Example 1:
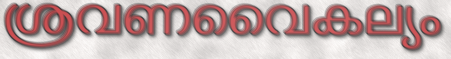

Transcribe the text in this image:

ശ്രവണവൈകല്യം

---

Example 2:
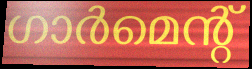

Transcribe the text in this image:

ഗാർമെന്റ്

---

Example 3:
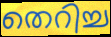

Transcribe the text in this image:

തെറിച്ച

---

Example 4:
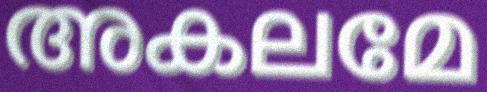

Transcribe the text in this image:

അകലമേ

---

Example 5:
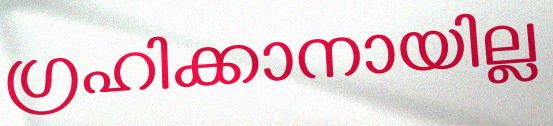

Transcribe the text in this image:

ഗ്രഹിക്കാനായില്ല